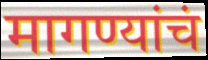
मागण्यांचं